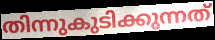
തിന്നുകുടിക്കുന്നത്